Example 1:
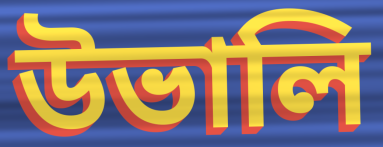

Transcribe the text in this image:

উভালি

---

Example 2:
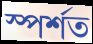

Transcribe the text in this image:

স্পৰ্শত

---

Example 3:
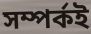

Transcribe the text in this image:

সম্পৰ্কই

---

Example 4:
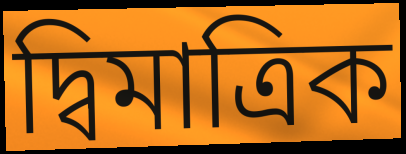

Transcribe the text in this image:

দ্বিমাত্ৰিক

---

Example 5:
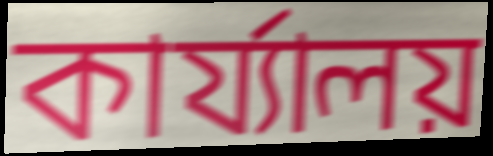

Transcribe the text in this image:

কাৰ্য্যালয়